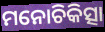
ମନୋଚିକିତ୍ସା